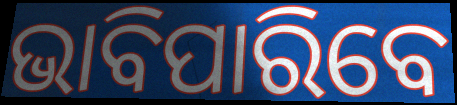
ଭାବିପାରିବେ